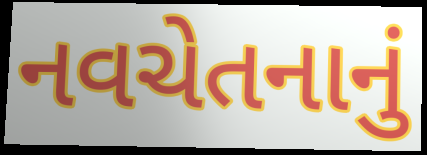
નવચેતનાનું